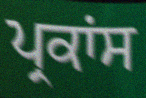
ਪ੍ਰਕਾਂਸ